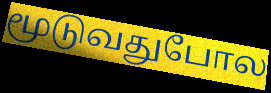
மூடுவதுபோல